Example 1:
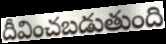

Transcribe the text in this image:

దీవించబడుతుంది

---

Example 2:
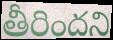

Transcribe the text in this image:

తీరిందని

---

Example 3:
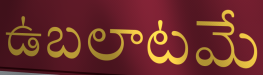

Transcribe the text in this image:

ఉబలాటమే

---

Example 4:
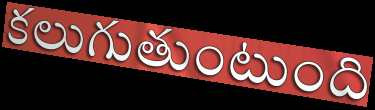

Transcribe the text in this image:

కలుగుతుంటుంది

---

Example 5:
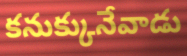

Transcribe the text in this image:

కనుక్కునేవాడు